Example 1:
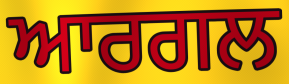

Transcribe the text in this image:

ਆਰਗਲ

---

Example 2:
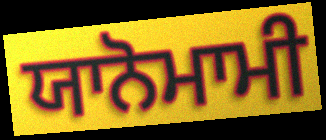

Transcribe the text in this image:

ਯਾਨੋਮਾਮੀ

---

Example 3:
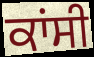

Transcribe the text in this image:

ਕਾਂਸੀ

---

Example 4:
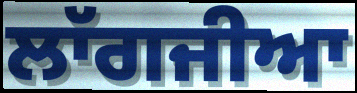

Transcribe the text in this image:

ਲਾੱਗਜੀਆ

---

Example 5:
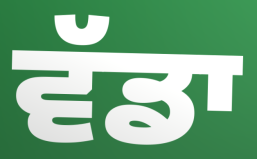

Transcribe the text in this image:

ਵੱਡਾ